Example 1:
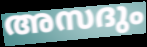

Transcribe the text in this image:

അസദും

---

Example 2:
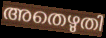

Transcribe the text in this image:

അതെഴുതി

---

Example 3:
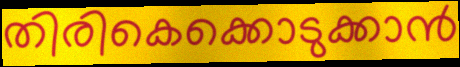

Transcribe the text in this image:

തിരികെക്കൊടുക്കാൻ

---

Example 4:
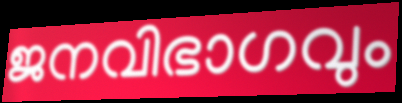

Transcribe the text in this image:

ജനവിഭാഗവും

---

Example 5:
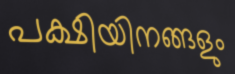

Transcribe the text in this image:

പക്ഷിയിനങ്ങളും